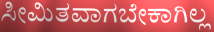
ಸೀಮಿತವಾಗಬೇಕಾಗಿಲ್ಲ